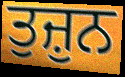
ਤੁਜ਼ੁਨ